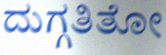
ದುಗ್ಗತಿತೋ